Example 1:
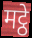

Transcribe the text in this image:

मट्ठे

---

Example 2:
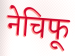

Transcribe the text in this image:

नेचिफू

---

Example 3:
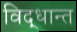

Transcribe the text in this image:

विद्धान्त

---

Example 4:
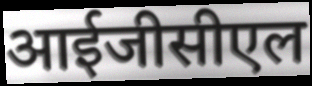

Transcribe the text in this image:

आईजीसीएल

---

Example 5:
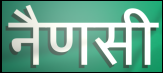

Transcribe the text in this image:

नैणसी